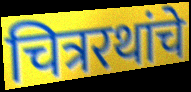
चित्ररथांचे